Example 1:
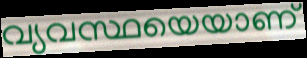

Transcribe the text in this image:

വ്യവസ്ഥയെയാണ്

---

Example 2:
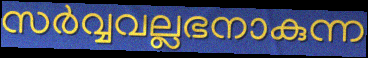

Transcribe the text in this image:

സർവ്വവല്ലഭനാകുന്ന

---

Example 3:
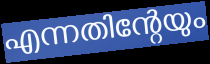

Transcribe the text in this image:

എന്നതിന്റേയും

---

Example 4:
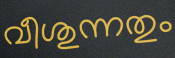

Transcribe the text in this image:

വീശുന്നതും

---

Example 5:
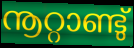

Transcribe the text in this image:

നൂറ്റാണ്ടു്